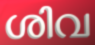
ശിവ